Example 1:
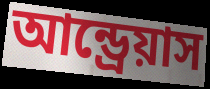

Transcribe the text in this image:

আন্ড্রেয়াস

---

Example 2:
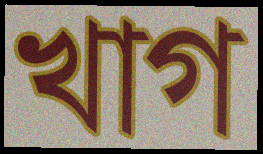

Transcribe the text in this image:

খাগ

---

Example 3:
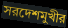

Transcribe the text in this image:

সরদেশমুখীর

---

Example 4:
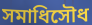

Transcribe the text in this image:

সমাধিসৌধ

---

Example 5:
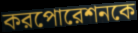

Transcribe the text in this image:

করপোরেশনকে